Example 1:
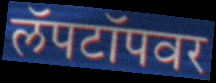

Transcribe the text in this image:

लॅपटॉपवर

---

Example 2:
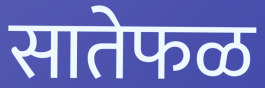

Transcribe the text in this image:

सातेफळ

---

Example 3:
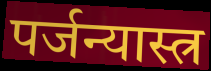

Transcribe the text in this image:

पर्जन्यास्त्र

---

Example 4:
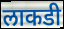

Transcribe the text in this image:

लाकडी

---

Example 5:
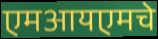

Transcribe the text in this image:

एमआयएमचे